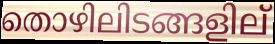
തൊഴിലിടങ്ങളില്